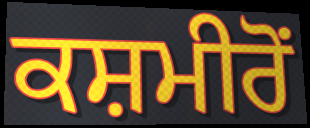
ਕਸ਼ਮੀਰੋਂ